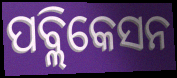
ପବ୍ଲିକେସନ